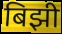
बिझी